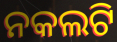
ନକଲଟି